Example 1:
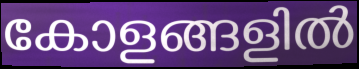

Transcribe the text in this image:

കോളങ്ങളിൽ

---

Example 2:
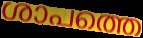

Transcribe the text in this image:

ശാപത്തെ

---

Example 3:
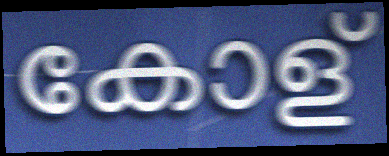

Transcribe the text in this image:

കോള്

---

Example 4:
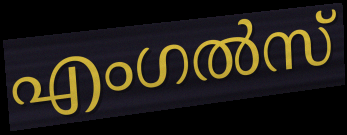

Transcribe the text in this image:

എംഗൽസ്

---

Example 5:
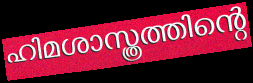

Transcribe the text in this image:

ഹിമശാസ്ത്രത്തിന്റെ